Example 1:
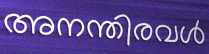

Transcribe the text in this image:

അനന്തിരവൾ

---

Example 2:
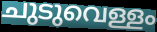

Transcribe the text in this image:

ചുടുവെള്ളം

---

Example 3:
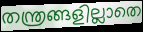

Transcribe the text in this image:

തന്ത്രങ്ങളില്ലാതെ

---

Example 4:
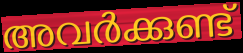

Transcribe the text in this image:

അവർക്കുണ്ട്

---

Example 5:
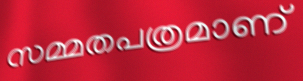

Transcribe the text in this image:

സമ്മതപത്രമാണ്